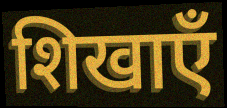
शिखाएँ